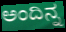
ಅಂದಿನ್ನ